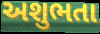
અશુભતા